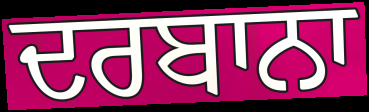
ਦਰਬਾਨਾ